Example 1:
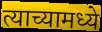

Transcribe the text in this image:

त्याच्यामध्ये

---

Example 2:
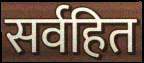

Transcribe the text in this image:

सर्वहित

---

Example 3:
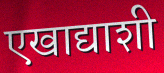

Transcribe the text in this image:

एखाद्याशी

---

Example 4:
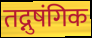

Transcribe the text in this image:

तद्नुषंगिक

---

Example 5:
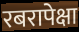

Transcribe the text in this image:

रबरापेक्षा